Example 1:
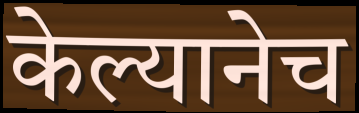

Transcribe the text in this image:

केल्यानेच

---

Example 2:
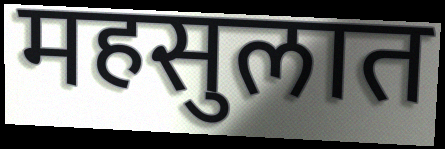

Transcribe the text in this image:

महसुलात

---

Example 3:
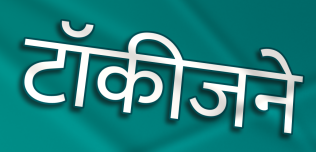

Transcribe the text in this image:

टॉकीजने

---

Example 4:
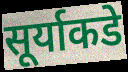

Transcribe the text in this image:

सूर्याकडे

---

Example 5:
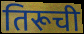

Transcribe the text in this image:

तिरूची